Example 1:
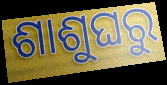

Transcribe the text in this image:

ଶାଶୁଘରୁ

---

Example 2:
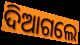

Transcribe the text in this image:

ଦିଆଗଲେ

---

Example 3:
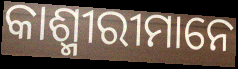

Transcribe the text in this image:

କାଶ୍ମୀରୀମାନେ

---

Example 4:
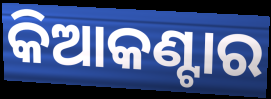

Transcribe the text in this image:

କିଆକଣ୍ଟାର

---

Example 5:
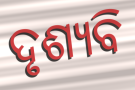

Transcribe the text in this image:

ଦୃଶ୍ୟବି